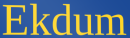
Ekdum